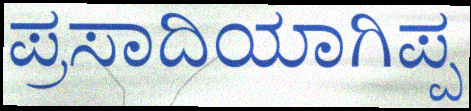
ಪ್ರಸಾದಿಯಾಗಿಪ್ಪ